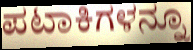
ಪಟಾಕಿಗಳನ್ನೂ